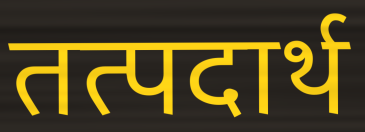
तत्पदार्थ